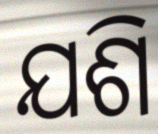
ଯଶି